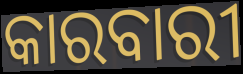
କାରବାରୀ